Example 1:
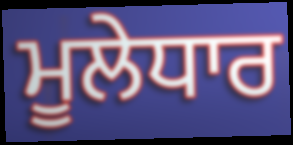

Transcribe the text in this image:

ਮੂਲੇਧਾਰ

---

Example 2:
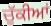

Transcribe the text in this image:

ਚੁੱਕੀਆਂ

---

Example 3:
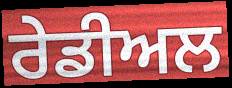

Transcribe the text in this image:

ਰੇਡੀਅਲ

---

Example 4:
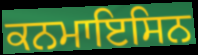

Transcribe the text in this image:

ਕਨਮਾਇਸਿਨ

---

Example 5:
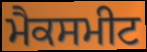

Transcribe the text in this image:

ਮੈਕਸਮੀਟ